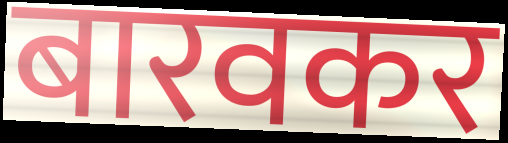
बारवकर